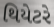
થિયેટરે